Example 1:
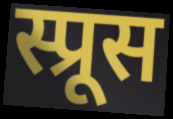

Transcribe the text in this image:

स्प्रूस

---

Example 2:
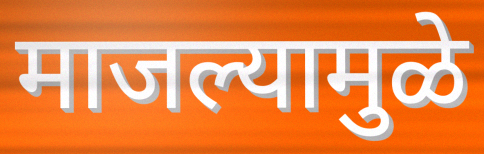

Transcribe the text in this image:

माजल्यामुळे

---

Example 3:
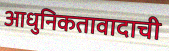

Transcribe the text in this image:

आधुनिकतावादाची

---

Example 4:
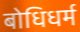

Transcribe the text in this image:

बोधिधर्म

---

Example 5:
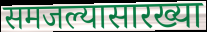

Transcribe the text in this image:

समजल्यासारख्या